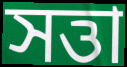
সত্তা